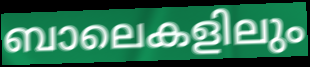
ബാലെകളിലും